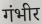
गंभीर